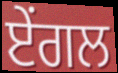
ਏਂਗਲ